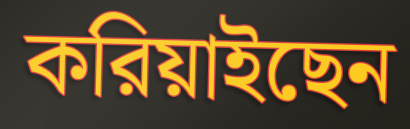
করিয়াইছেন